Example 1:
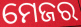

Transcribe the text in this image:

ମେଜର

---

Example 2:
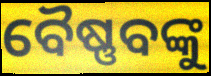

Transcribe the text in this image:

ବୈଷ୍ଣବଙ୍କୁ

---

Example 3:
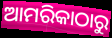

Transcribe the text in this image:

ଆମରିକାଠାରୁ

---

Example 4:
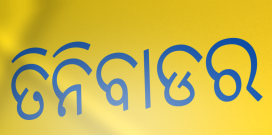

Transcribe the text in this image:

ତିନିବାଡର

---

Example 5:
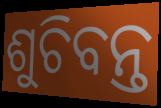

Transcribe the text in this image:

ଶୁଚିବନ୍ତ